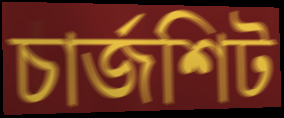
চার্জশিট